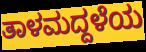
ತಾಳಮದ್ದಳೆಯ